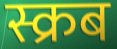
स्क्रब